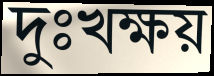
দুঃখক্ষয়